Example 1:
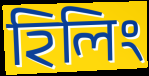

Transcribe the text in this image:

হিলিং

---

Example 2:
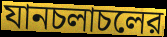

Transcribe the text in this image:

যানচলাচলের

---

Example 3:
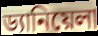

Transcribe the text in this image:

ড্যানিয়েলা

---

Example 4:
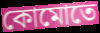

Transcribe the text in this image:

কোমোতে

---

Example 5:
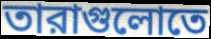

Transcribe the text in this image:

তারাগুলোতে